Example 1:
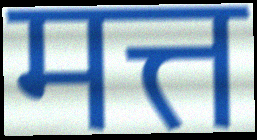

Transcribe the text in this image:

मत्त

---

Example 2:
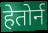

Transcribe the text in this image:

हेतोर्न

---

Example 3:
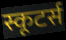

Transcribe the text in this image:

स्‍कूटर्स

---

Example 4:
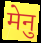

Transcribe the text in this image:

मेनु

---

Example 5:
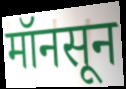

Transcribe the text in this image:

मॉनसून